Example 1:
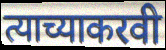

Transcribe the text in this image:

त्याच्याकरवी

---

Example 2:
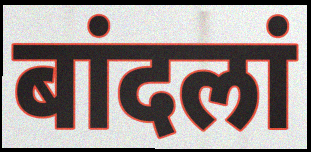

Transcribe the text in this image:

बांदलां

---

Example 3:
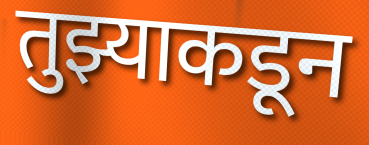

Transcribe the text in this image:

तुझ्याकडून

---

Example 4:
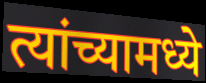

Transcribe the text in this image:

त्यांच्यामध्ये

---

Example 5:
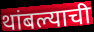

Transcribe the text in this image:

थांबल्याची